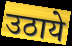
उठाये